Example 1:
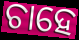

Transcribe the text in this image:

ଚାହେ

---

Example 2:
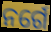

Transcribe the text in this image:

ନର୍ଗେ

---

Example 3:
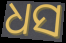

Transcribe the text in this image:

ଧସ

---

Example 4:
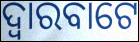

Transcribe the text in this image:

ଦ୍ୱାରବାଟେ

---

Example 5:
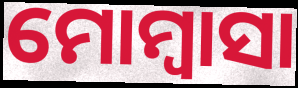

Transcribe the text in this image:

ମୋମ୍ବାସା